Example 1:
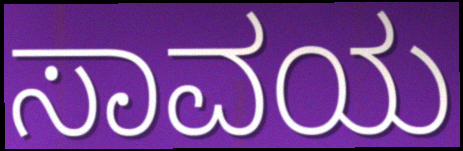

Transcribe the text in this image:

ಸಾವಯ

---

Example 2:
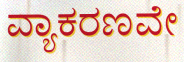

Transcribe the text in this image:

ವ್ಯಾಕರಣವೇ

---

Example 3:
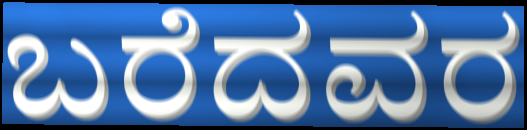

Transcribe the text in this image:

ಬರೆದವರ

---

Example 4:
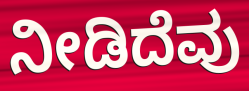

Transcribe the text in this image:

ನೀಡಿದೆವು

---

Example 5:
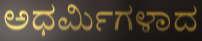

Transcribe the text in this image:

ಅಧರ್ಮಿಗಳಾದ